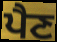
ਪੈਣ